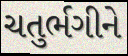
ચતુર્ભગીને